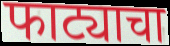
फाट्याचा